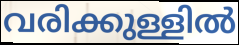
വരിക്കുള്ളിൽ